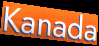
Kanada